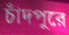
চাঁদপুরে